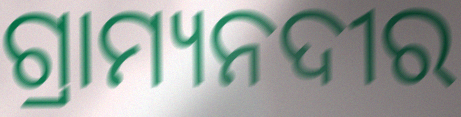
ଗ୍ରାମ୍ୟନଦୀର